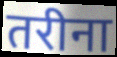
तरीना